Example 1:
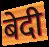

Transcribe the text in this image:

बेदी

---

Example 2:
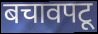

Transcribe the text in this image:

बचावपटू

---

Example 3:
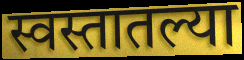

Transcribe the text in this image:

स्वस्तातल्या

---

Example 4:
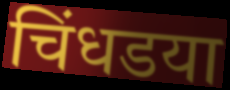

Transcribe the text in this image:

चिंधडया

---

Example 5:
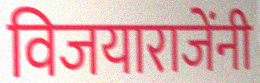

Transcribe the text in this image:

विजयाराजेंनी